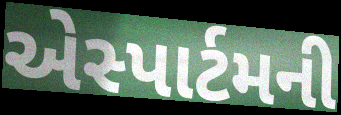
એસ્પાર્ટમની